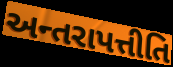
અન્તરાપત્તીતિ